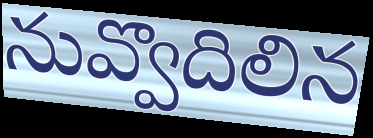
నువ్వొదిలిన